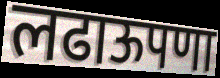
लढाऊपणा